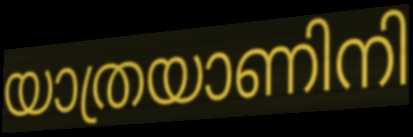
യാത്രയാണിനി